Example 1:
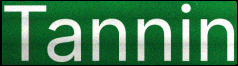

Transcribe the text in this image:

Tannin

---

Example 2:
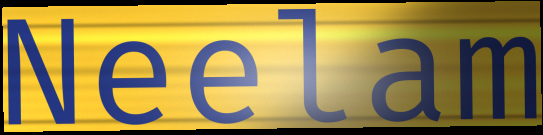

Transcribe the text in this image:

Neelam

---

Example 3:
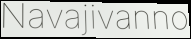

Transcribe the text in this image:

Navajivanno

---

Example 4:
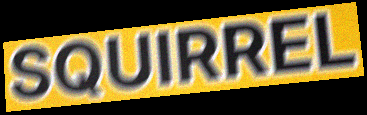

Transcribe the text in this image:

SQUIRREL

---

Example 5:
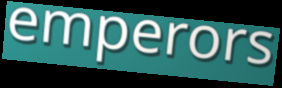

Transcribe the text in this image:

emperors